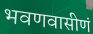
भवणवासीणं